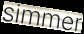
simmer